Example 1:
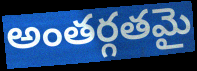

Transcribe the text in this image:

అంతర్గతమై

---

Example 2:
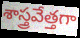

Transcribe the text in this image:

శాస్త్రవేత్తగా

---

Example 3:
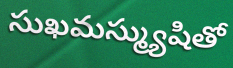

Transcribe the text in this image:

సుఖమస్మ్యుషితో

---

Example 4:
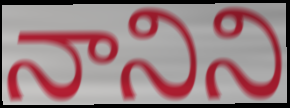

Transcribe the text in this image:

నానిని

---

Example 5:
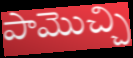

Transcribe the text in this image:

పామొచ్చి